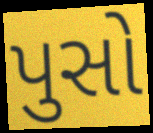
પુસો